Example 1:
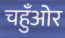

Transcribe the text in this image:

चहुँओर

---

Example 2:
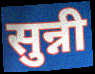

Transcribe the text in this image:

सुन्नी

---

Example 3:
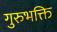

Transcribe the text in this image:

गुरुभक्ति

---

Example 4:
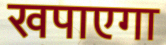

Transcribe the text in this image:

खपाएगा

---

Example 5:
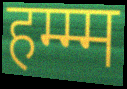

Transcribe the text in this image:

हम्म्म